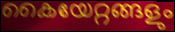
കൈയേറ്റങ്ങളും